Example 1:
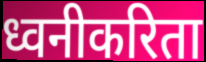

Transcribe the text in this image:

ध्वनीकरिता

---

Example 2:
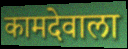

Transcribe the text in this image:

कामदेवाला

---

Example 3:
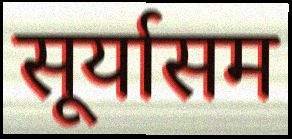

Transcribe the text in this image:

सूर्यासम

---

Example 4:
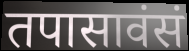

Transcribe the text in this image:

तपासावंसं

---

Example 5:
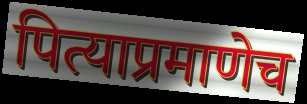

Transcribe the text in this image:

पित्याप्रमाणेच